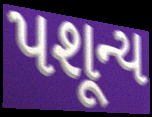
પશૂન્ય